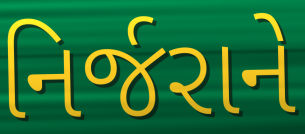
નિર્જરાને